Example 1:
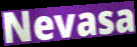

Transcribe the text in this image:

Nevasa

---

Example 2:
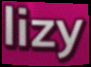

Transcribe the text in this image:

lizy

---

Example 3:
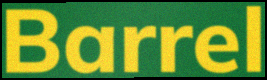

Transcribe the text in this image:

Barrel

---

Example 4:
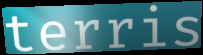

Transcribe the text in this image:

terris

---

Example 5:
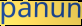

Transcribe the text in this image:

panun